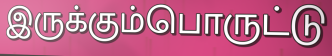
இருக்கும்பொருட்டு